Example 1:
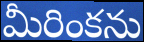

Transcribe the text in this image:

మీరింకను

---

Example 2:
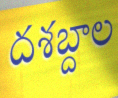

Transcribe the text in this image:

దశబ్దాల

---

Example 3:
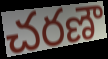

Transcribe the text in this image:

చరణౌ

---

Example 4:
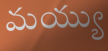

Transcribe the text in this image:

మయ్యు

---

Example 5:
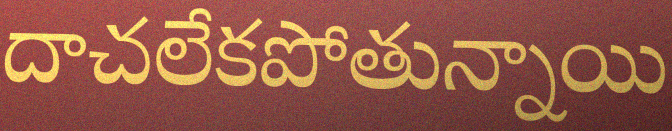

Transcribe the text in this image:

దాచలేకపోతున్నాయి